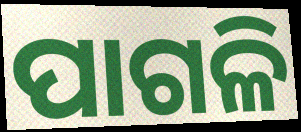
ପାଗଳି